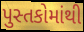
પુસ્તકોમાંથી